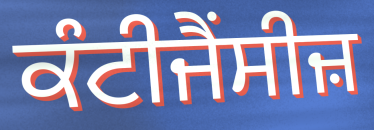
ਕੰਟੀਜੈਂਸੀਜ਼